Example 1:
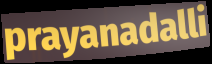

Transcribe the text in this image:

prayanadalli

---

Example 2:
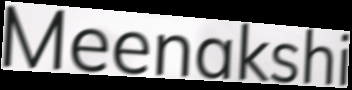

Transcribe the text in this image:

Meenakshi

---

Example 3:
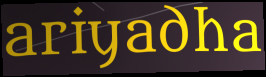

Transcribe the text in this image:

ariyadha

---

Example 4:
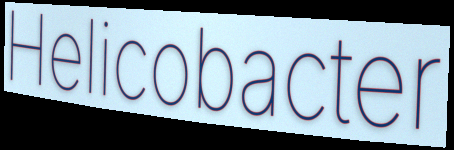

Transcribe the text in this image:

Helicobacter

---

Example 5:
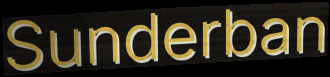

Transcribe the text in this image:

Sunderban